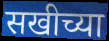
सखीच्या